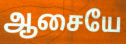
ஆசையே